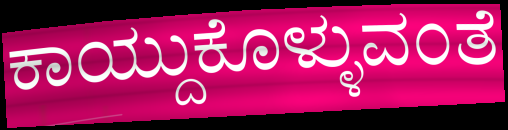
ಕಾಯ್ದುಕೊಳ್ಳುವಂತೆ